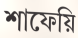
শাফেয়ি